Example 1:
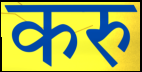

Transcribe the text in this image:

करु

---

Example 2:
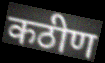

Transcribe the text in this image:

कठीण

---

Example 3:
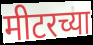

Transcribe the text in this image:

मीटरच्या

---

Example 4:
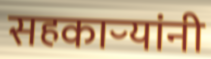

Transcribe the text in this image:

सहकाऱ्यांनी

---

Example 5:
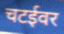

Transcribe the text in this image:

चटईवर